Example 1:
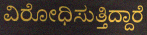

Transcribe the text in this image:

ವಿರೋಧಿಸುತ್ತಿದ್ದಾರೆ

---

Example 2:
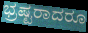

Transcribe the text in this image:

ಭ್ರಷ್ಟರಾದರೂ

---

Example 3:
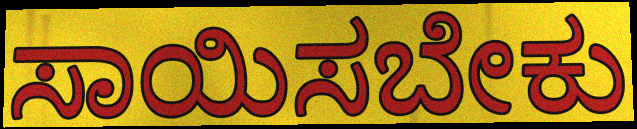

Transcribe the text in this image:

ಸಾಯಿಸಬೇಕು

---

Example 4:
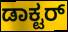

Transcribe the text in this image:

ಡಾಕ್ಟರ್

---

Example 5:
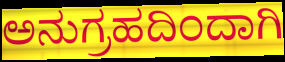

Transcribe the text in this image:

ಅನುಗ್ರಹದಿಂದಾಗಿ